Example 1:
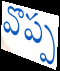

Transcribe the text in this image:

వొప్ప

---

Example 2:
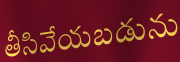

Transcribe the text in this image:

తీసివేయబడును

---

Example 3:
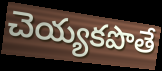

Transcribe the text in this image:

చెయ్యకపొతే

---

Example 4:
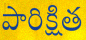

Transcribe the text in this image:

పారిక్షిత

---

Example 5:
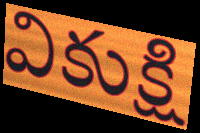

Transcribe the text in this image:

వికుక్షి